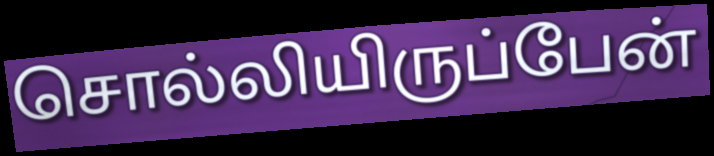
சொல்லியிருப்பேன்